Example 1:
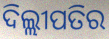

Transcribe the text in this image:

ଦିଲ୍ଲୀପତିର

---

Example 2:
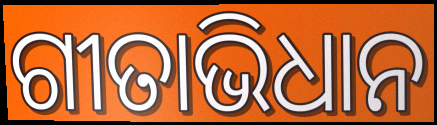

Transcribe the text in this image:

ଗୀତାଭିଧାନ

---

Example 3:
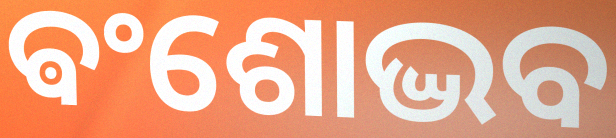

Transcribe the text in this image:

ଵଂଶୋଦ୍ଭବ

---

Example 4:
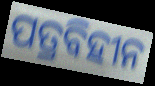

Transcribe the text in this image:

ପତ୍ରବିହୀନ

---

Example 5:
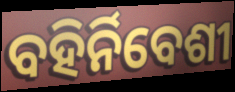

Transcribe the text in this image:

ବହିର୍ନିବେଶୀ